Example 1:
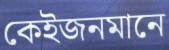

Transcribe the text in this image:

কেইজনমানে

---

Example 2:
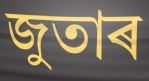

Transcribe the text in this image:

জুতাৰ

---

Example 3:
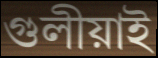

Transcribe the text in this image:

গুলীয়াই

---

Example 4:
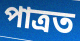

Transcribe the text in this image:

পাত্ৰত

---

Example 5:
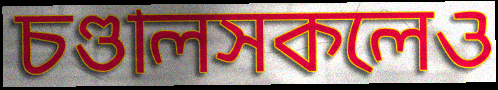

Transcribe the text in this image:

চণ্ডালসকলেও